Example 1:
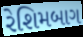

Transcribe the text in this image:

રેશિમબાગ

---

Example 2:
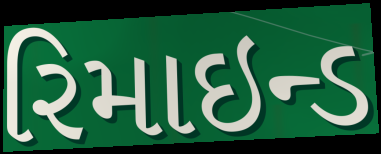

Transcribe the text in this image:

રિમાઇન્ડ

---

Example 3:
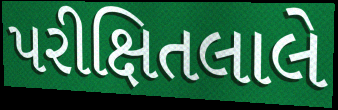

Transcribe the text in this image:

પરીક્ષિતલાલે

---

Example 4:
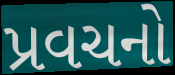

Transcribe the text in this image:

પ્રવચનો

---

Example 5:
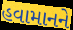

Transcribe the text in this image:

હવામાનને